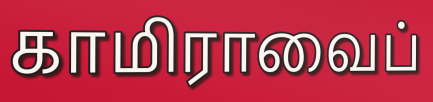
காமிராவைப்